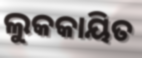
ଲୁକକାୟିତ